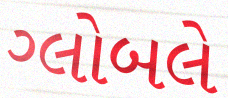
ગ્લોબલે